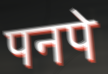
पनपे